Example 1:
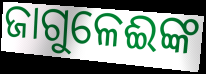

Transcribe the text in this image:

ଜାଗୁଳେଈଙ୍କ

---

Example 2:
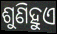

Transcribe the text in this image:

ଶୁଣିହୁଏ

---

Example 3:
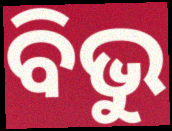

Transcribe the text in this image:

ବିଭୁ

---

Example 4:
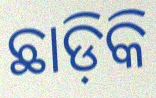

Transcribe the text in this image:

ଛାଡ଼ିକି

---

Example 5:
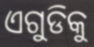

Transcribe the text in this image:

ଏଗୁଡିକୁ